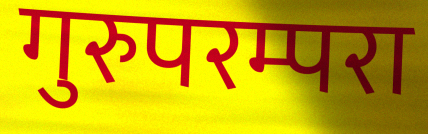
गुरुपरम्परा